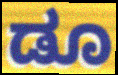
ಡೂ